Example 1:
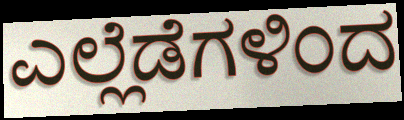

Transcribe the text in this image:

ಎಲ್ಲೆಡೆಗಳಿಂದ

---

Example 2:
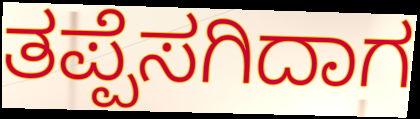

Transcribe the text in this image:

ತಪ್ಪೆಸಗಿದಾಗ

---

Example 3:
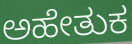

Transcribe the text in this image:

ಅಹೇತುಕ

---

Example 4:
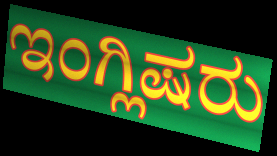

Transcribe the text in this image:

ಇಂಗ್ಲಿಷರು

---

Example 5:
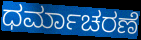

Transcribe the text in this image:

ಧರ್ಮಾಚರಣೆ